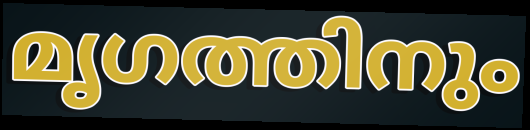
മൃഗത്തിനും